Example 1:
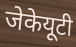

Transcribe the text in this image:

जेकेयूटी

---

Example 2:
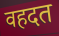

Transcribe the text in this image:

वहदत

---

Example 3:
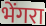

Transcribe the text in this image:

भेंगरा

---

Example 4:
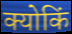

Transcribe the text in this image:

क्योकिं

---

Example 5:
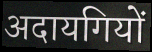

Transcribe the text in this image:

अदायगियों